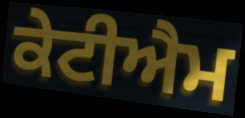
ਕੇਟੀਐਮ